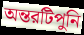
অন্তরটিপুনি